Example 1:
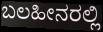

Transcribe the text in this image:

ಬಲಹೀನರಲ್ಲಿ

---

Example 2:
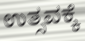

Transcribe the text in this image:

ಉತ್ಸವಕ್ಕೆ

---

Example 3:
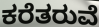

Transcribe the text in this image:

ಕರೆತರುವೆ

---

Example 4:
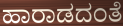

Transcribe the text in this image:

ಹಾರಾಡದಂತೆ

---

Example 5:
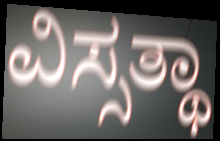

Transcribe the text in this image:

ವಿಸ್ಸತ್ಥಾ